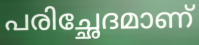
പരിച്ഛേദമാണ്